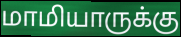
மாமியாருக்கு